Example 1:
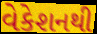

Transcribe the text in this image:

વેકેશનથી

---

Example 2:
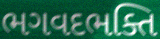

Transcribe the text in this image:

ભગવદભક્તિ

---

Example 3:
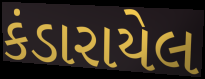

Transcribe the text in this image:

કંડારાયેલ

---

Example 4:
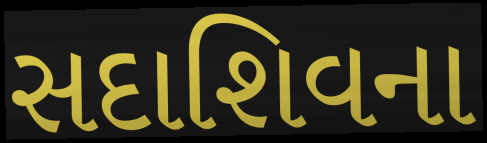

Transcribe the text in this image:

સદાશિવના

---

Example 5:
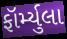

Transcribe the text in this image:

ફૉર્મ્યુલા